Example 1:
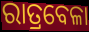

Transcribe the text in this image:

ରାତ୍ରବେଳା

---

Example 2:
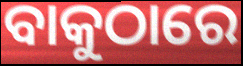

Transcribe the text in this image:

ବାକୁଠାରେ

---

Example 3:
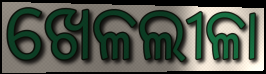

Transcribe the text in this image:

ଖେଳଲୀଳା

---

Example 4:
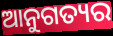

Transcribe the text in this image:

ଆନୁଗତ୍ୟର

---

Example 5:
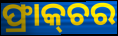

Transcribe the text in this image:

ଫ୍ରାକ୍‌ଚର